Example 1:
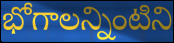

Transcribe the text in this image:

భోగాలన్నింటిని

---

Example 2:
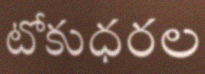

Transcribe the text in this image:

టోకుధరల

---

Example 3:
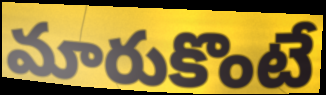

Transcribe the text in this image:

మారుకొంటే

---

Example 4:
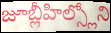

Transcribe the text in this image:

జూబ్లీహిల్స్లోని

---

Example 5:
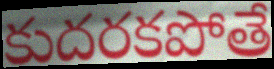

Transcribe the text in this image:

కుదరకపోతే